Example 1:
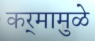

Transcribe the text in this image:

कर्मामुळे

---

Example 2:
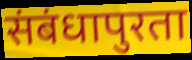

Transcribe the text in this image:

संबंधापुरता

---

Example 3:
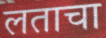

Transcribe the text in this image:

लताचा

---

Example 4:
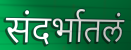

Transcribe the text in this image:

संदर्भातलं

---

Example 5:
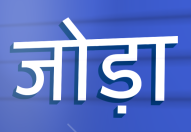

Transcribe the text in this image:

जोड़ा